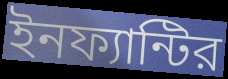
ইনফ্যান্টির